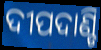
ଦୀପଦାଣ୍ଡି